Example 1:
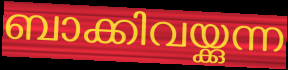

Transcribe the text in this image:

ബാക്കിവയ്ക്കുന്ന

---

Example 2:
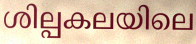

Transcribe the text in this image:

ശില്പകലയിലെ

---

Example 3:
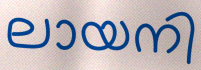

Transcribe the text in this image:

ലായനി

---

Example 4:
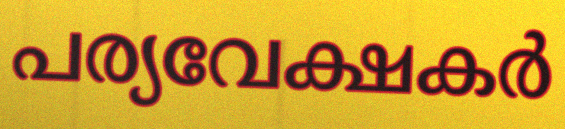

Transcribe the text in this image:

പര്യവേക്ഷകർ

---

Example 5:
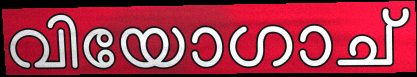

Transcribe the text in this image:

വിയോഗാച്